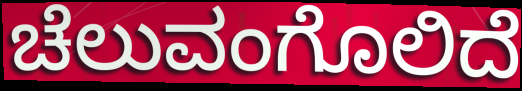
ಚೆಲುವಂಗೊಲಿದೆ